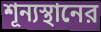
শূন্যস্থানের